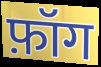
फ़ॉग